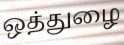
ஒத்துழை